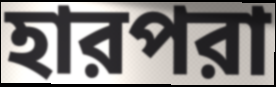
হারপরা